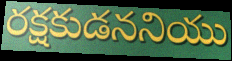
రక్షకుడననియు